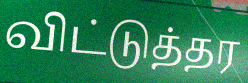
விட்டுத்தர